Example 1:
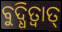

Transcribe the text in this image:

ବୁଦ୍ଧିତ୍ୱାତ୍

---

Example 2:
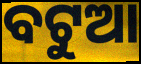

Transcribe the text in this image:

ବଟୁଆ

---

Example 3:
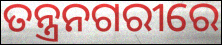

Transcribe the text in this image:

ତନ୍ତ୍ରନଗରୀରେ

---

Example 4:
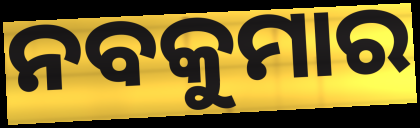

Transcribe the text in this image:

ନବକୁମାର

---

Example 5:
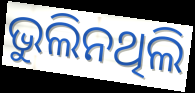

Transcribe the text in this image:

ଭୁଲିନଥିଲି